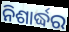
ନିଶାର୍ଦ୍ଧର